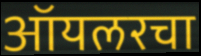
ऑयलरचा